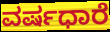
ವರ್ಷಧಾರೆ